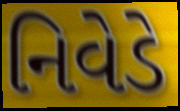
નિવેડે